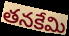
తనకేమి